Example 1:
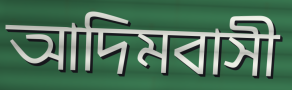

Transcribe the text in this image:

আদিমবাসী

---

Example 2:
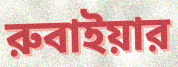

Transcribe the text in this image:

রুবাইয়ার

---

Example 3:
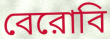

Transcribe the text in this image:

বেরোবি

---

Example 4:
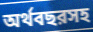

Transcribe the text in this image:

অর্থবছরসহ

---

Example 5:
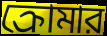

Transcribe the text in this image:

ক্রোমার